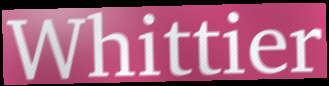
Whittier